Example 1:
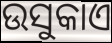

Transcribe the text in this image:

ଉସୁକାଏ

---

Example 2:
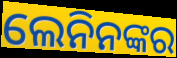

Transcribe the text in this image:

ଲେନିନଙ୍କର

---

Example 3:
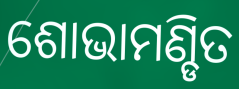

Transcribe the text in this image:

ଶୋଭାମଣ୍ଡିତ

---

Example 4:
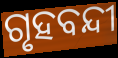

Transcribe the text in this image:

ଗୃହବନ୍ଦୀ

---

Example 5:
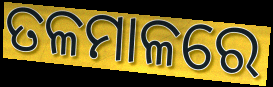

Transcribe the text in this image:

ତଳମାଳରେ